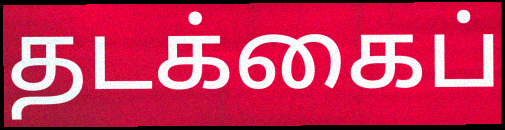
தடக்கைப்